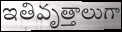
ఇతివృత్తాలుగా